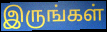
இருங்கள்